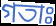
গতাঃ